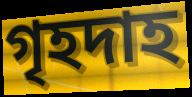
গৃহদাহ